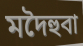
মদৈহুবা